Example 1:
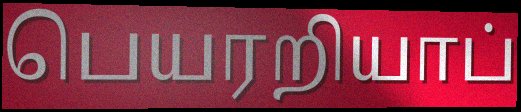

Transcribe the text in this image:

பெயரறியாப்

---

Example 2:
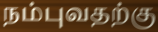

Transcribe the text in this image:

நம்புவதற்கு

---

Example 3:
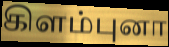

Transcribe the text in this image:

கிளம்புனா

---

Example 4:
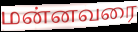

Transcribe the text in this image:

மன்னவரை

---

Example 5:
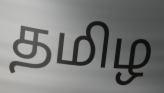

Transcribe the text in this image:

தமிழ